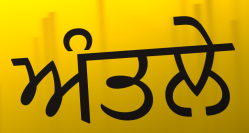
ਅੰਤਲੇ